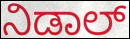
ನಿಡಾಲ್